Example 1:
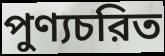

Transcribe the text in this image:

পুণ্যচরিত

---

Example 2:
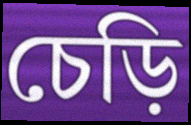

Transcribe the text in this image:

চেড়ি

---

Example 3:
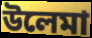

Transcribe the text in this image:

উলেমা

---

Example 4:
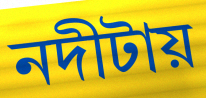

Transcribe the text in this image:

নদীটায়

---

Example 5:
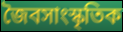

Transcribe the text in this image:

জৈবসাংস্কৃতিক